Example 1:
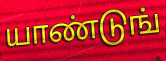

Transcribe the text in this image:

யாண்டுங்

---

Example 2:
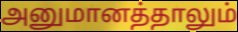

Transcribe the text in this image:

அனுமானத்தாலும்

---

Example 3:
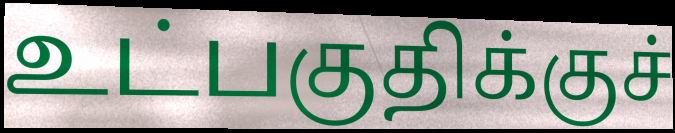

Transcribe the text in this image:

உட்பகுதிக்குச்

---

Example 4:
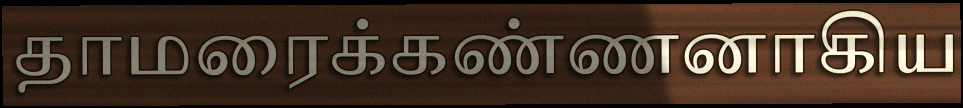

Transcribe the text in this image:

தாமரைக்கண்ணனாகிய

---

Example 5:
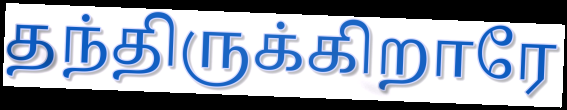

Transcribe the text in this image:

தந்திருக்கிறாரே